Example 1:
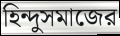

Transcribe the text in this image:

হিন্দুসমাজের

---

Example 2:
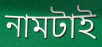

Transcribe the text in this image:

নামটাই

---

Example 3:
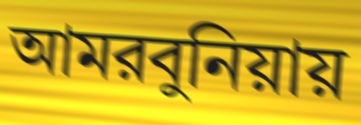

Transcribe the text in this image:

আমরবুনিয়ায়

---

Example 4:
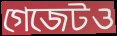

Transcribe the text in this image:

গেজেটও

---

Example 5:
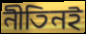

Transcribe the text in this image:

নীতিনই